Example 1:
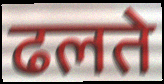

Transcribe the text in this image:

ढलते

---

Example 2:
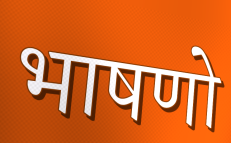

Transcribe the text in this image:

भाषणो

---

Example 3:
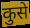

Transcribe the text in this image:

कुसे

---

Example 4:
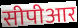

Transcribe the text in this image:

सीपीआर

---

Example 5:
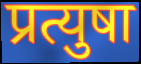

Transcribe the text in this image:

प्रत्युषा